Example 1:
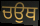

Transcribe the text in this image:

ਚਉਥ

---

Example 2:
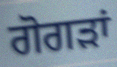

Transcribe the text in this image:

ਗੋਗੜਾਂ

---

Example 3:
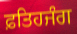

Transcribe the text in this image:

ਫ਼ਤਿਹਜੰਗ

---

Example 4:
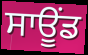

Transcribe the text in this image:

ਸਾਊਂਡ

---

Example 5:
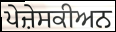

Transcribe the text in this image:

ਪੇਜ਼ੇਸਕੀਅਨ